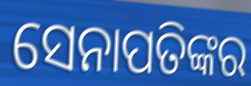
ସେନାପତିଙ୍କର